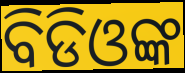
ବିଡିଓଙ୍କ